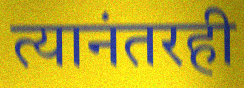
त्यानंतरही